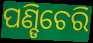
ପଣ୍ଡିଚେରି